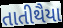
તાતીથૈયા